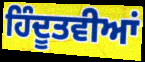
ਹਿੰਦੂਤਵੀਆਂ